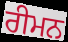
ਰੀਮਨ